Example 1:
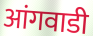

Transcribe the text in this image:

आंगवाडी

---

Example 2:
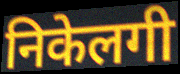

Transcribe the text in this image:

निकेलगी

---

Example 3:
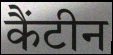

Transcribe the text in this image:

कैंटीन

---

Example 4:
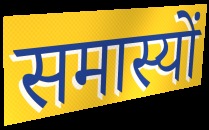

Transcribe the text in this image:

समास्यों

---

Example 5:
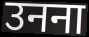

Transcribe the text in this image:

उनना